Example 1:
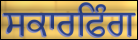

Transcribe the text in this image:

ਸਕਾਰਫਿੰਗ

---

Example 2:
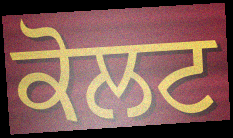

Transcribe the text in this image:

ਕੋਲਟ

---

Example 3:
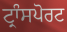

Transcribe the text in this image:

ਟ੍ਰਾੰਸਪੋਰਟ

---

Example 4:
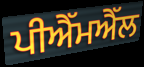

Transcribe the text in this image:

ਪੀਐੱਮਐੱਲ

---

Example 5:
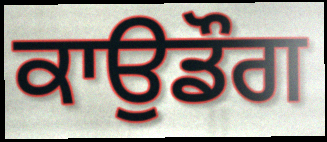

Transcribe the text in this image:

ਕਾਉਡੌਗ